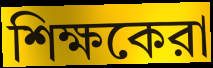
শিক্ষকেরা